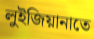
লুইজিয়ানাতে